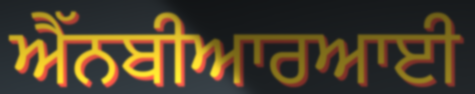
ਐੱਨਬੀਆਰਆਈ